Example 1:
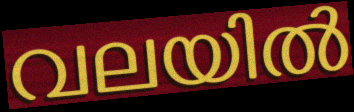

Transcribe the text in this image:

വലയിൽ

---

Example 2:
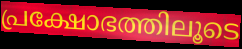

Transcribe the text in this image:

പ്രക്ഷോഭത്തിലൂടെ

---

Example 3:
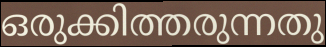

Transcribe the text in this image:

ഒരുക്കിത്തരുന്നതു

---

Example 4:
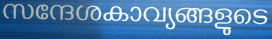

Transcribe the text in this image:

സന്ദേശകാവ്യങ്ങളുടെ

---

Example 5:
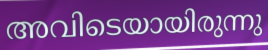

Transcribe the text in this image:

അവിടെയായിരുന്നു